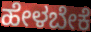
ಹೇಳಬೇಕೆ